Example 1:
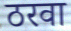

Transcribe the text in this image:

ठरवा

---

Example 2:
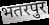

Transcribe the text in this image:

भतरपुर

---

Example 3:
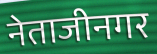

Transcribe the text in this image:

नेताजीनगर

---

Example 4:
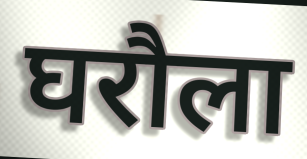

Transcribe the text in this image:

घरौला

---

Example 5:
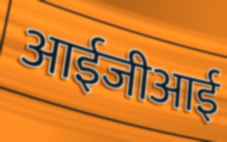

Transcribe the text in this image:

आईजीआई